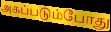
அகப்படும்போது